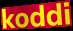
koddi